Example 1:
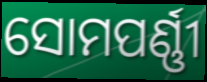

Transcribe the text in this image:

ସୋମପର୍ଣ୍ଣୀ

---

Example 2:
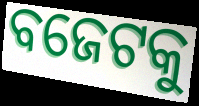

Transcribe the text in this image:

ବଜେଟକୁ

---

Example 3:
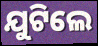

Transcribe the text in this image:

ଯୁଟିଲେ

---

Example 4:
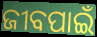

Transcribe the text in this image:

ଜୀବପାଇଁ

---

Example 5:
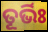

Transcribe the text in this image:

ତୂର୍ଭିଃ